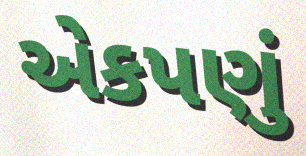
એકપણું